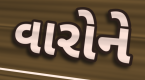
વારોને